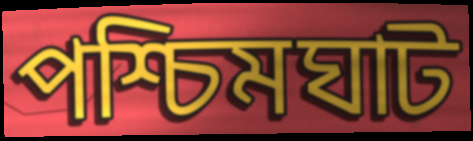
পশ্চিমঘাট